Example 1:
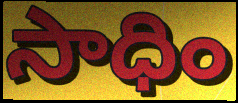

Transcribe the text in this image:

సాధిం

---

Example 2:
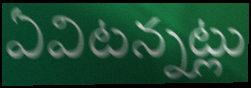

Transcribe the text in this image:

ఏవిటన్నట్లు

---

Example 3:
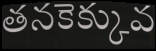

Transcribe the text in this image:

తనకెక్కువ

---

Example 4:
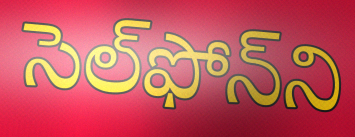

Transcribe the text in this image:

సెల్‌ఫోన్‌ని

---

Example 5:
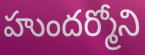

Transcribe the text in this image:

హుందర్మోని